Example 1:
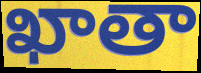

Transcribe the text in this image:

ఖాతా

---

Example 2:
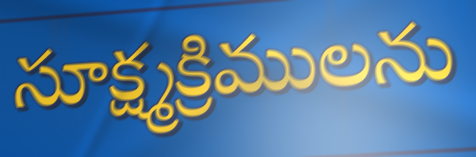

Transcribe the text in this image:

సూక్ష్మక్రిములను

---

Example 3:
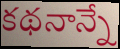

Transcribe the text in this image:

కథనాన్నే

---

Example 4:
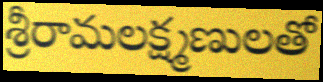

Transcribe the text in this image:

శ్రీరామలక్ష్మణులతో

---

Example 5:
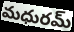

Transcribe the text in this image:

మధురమ్